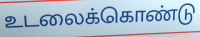
உடலைக்கொண்டு